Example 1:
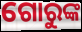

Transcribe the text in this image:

ଗୋରୁଙ୍କ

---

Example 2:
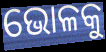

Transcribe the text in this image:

ଭୋଳକୁ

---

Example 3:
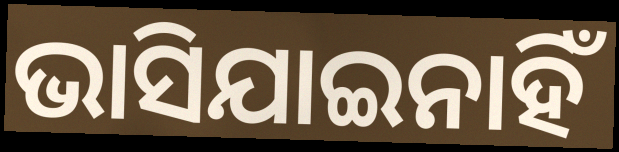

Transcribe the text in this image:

ଭାସିଯାଇନାହିଁ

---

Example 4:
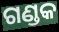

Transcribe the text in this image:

ଗଣ୍ଡକ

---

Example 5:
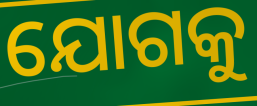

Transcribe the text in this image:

ଯୋଗକୁ